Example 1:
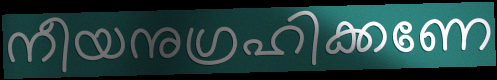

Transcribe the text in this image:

നീയനുഗ്രഹിക്കണേ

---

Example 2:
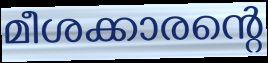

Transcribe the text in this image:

മീശക്കാരന്റെ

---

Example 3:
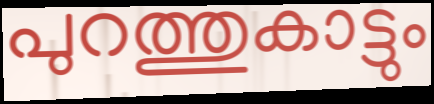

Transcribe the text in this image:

പുറത്തുകാട്ടും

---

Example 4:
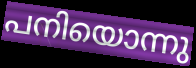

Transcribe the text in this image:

പനിയൊന്നു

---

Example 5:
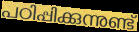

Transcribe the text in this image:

പഠിപ്പിക്കുന്നുണ്ട്